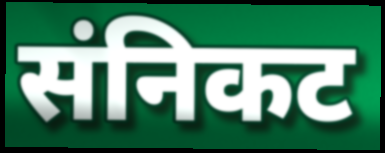
संनिकट